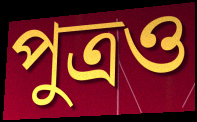
পুত্রও